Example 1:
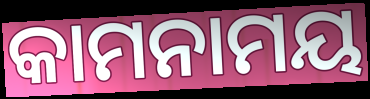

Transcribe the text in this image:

କାମନାମୟ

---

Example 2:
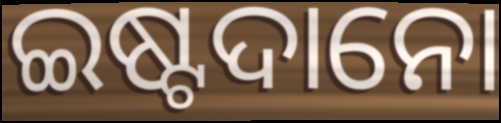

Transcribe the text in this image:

ଇଷ୍ଟଦାନୋ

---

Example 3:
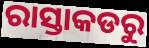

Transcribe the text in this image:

ରାସ୍ତାକଡରୁ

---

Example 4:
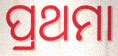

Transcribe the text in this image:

ପ୍ରଥମା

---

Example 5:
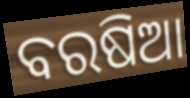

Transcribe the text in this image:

ବରଷିଆ